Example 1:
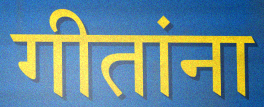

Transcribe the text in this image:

गीतांना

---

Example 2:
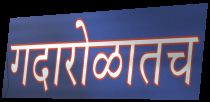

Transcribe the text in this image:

गदारोळातच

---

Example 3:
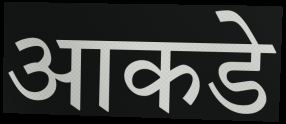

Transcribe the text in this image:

आकडे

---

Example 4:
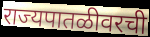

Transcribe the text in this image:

राज्यपातळीवरची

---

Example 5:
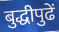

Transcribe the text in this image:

बुद्धीपुढें